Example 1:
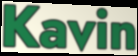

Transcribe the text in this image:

Kavin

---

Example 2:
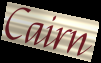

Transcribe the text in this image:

Cairn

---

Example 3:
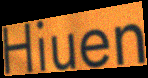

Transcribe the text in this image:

Hiuen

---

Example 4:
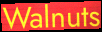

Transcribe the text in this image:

Walnuts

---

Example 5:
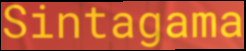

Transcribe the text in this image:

Sintagama